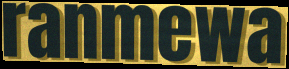
ranmewa